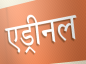
एड्रीनल